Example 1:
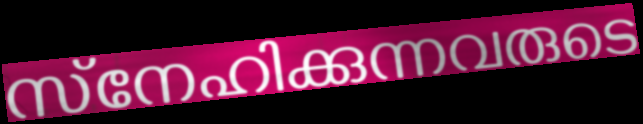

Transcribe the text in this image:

സ്‌നേഹിക്കുന്നവരുടെ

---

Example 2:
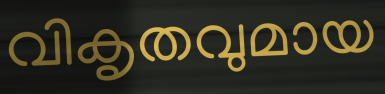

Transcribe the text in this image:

വികൃതവുമായ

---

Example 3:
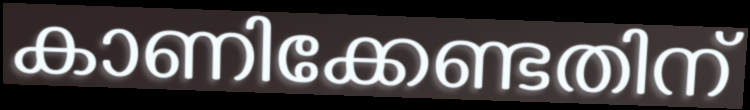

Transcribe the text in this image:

കാണിക്കേണ്ടതിന്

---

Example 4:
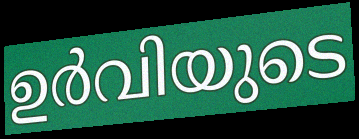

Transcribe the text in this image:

ഉർവിയുടെ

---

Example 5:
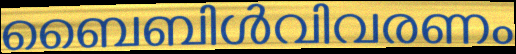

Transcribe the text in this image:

ബൈബിൾവിവരണം